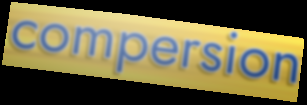
compersion